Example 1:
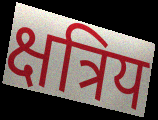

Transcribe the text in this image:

क्षत्रिय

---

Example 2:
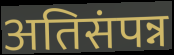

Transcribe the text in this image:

अतिसंपन्न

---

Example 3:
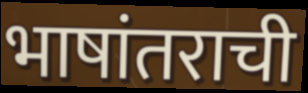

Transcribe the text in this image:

भाषांतराची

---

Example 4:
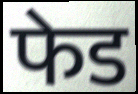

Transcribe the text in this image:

फेड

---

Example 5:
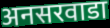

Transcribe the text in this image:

अनसरवाडा